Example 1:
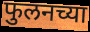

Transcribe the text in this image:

फुलनच्या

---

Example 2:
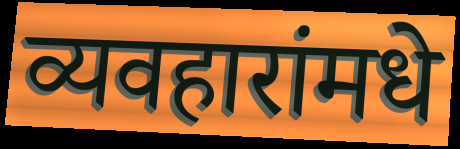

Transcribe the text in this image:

व्यवहारांमधे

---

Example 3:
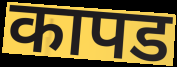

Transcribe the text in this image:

कापड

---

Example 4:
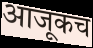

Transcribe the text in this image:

आजूकच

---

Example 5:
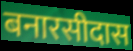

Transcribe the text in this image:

बनारसीदास